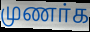
முணர்க